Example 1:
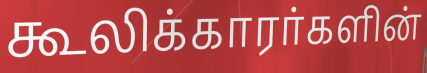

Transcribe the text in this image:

கூலிக்காரர்களின்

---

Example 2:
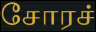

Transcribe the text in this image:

சோரச்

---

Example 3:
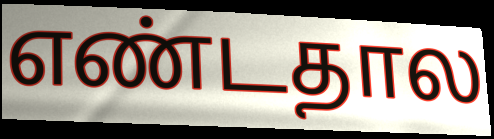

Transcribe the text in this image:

எண்டதால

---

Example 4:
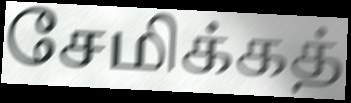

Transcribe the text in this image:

சேமிக்கத்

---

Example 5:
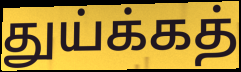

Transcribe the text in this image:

துய்க்கத்